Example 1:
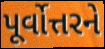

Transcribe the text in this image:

પૂર્વોત્તરને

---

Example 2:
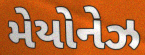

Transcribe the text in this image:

મેયોનેઝ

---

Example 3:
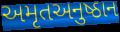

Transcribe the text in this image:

અમૃતઅનુષ્ઠાન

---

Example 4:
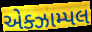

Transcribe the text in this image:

એક્ઝામ્પલ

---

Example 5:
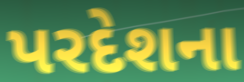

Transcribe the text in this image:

પરદેશના